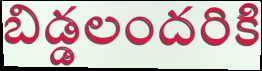
బిడ్డలందరికి